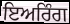
ਇਅਰਿੰਗ